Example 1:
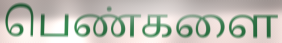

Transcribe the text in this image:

பெண்களை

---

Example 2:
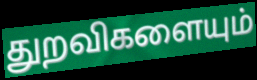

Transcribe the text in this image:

துறவிகளையும்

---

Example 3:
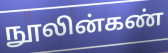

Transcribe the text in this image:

நூலின்கண்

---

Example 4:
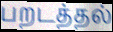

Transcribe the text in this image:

பறடத்தல்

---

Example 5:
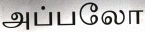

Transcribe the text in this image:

அப்பலோ